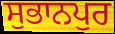
ਸੁਭਾਨਪੁਰ